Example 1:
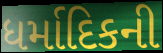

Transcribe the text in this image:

ધર્માદિકની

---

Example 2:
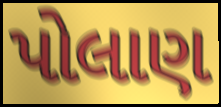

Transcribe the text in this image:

પોલાણ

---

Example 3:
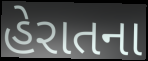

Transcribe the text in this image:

હેરાતના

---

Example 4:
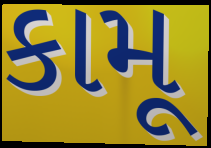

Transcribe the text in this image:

કામૂ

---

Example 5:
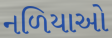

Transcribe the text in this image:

નળિયાઓ